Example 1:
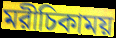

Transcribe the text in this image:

মরীচিকাময়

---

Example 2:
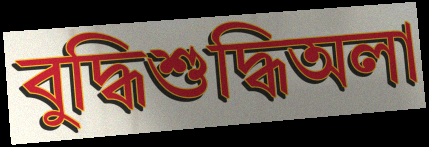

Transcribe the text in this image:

বুদ্ধিশুদ্ধিঅলা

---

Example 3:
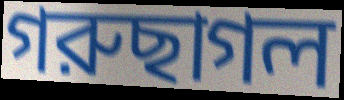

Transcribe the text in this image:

গরুছাগল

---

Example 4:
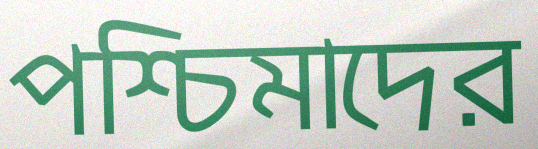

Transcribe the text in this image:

পশ্চিমাদের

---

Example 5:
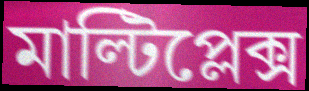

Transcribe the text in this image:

মাল্টিপ্লেক্স